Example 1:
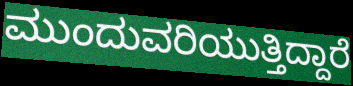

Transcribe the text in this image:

ಮುಂದುವರಿಯುತ್ತಿದ್ದಾರೆ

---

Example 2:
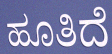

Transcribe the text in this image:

ಹೂತಿದೆ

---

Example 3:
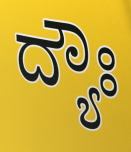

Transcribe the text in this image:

ದ್ಯೌಃ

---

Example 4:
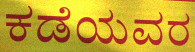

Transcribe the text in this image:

ಕಡೆಯವರ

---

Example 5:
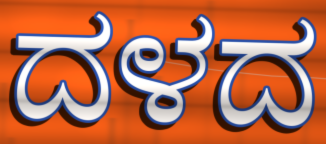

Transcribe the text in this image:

ದಳದ